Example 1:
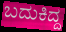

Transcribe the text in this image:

ಬದುಕಿದ್ದ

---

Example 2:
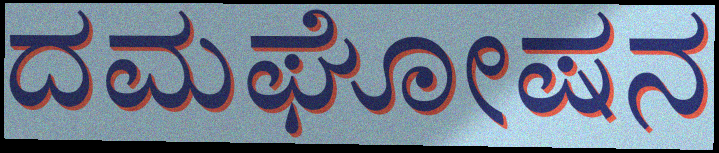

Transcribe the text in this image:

ದಮಘೋಷನ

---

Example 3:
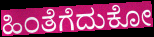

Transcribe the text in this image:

ಹಿಂತೆಗೆದುಕೋ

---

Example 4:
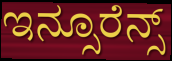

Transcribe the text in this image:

ಇನ್ಸೂರೆನ್ಸ್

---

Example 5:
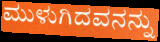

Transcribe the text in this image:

ಮುಳುಗಿದವನನ್ನು